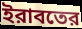
ইরাবতের